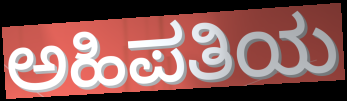
ಅಹಿಪತಿಯ